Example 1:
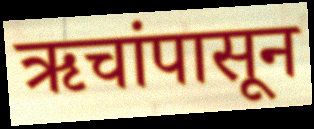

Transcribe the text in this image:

ऋचांपासून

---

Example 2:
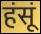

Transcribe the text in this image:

हंसूं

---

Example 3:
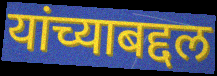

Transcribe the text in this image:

यांच्याबद्दल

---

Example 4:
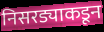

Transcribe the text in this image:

निसरड्याकडून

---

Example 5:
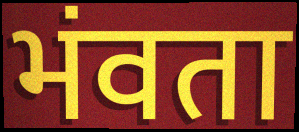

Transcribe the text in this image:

भंवता